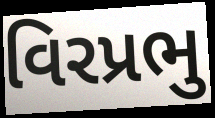
વિરપ્રભુ